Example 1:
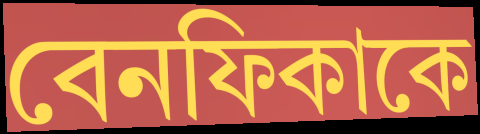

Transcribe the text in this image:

বেনফিকাকে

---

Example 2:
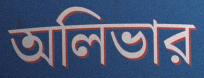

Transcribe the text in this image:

অলিভার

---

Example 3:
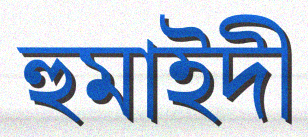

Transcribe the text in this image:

হুমাইদী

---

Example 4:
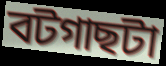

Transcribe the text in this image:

বটগাছটা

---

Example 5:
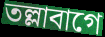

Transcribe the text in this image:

তল্লাবাগে